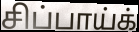
சிப்பாய்க்